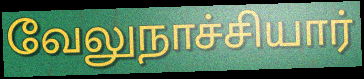
வேலுநாச்சியார்